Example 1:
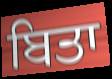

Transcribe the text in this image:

ਬਿਤਾ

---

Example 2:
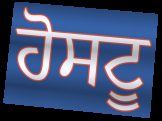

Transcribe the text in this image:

ਹੋਸਟੂ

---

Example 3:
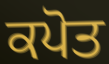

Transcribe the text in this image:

ਕਪੋਤ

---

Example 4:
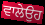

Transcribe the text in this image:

ਵਾਲੇਉਹ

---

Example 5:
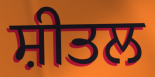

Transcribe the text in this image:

ਸ਼ੀਤਲ